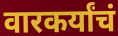
वारकर्यांचं